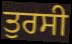
ਤੁਰਸੀ